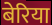
बेरिया